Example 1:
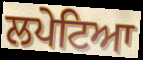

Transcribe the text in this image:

ਲਪੇਟਿਆ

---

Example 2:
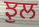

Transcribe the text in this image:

ਝੁਲ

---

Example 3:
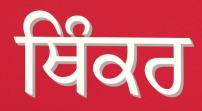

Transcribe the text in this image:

ਥਿੰਕਰ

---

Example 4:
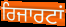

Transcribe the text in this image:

ਰਿਜਾਰਟਾਂ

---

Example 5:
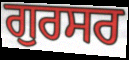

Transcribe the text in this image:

ਗੁਰਸਰ